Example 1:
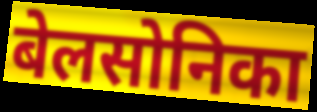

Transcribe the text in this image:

बेलसोनिका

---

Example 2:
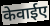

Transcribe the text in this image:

केवाईए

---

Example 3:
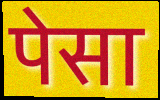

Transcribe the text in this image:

पेसा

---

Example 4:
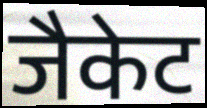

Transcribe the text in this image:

जैकेट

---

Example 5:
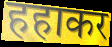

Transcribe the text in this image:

हहाकर